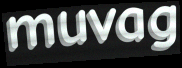
muvag